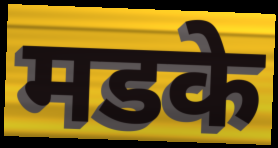
मडके